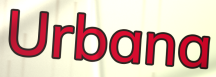
Urbana